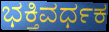
ಭಕ್ತಿವರ್ಧಕ